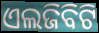
ଏଲଜିବିଟି